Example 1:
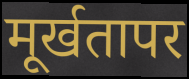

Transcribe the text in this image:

मूर्खतापर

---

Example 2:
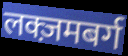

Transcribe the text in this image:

लक्ज़मबर्ग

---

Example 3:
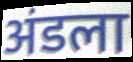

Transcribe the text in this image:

अंडला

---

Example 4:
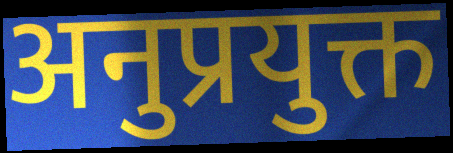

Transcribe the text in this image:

अनुप्रयुक्त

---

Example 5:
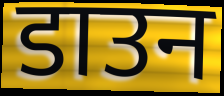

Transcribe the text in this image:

डाउन